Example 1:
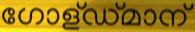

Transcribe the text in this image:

ഗോള്ഡ്മാന്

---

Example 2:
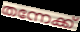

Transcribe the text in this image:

തന്നേക്ക്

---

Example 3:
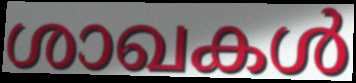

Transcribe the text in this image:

ശാഖകൾ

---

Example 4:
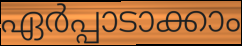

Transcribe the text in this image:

ഏർപ്പാടാക്കാം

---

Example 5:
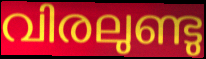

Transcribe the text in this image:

വിരലുണ്ടു